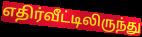
எதிர்வீட்டிலிருந்து